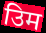
उिम